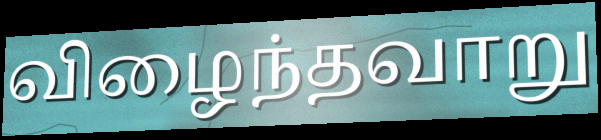
விழைந்தவாறு